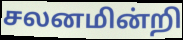
சலனமின்றி